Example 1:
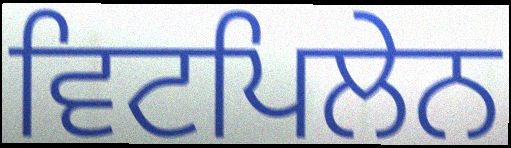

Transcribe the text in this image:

ਵਿਟਪਿਲੇਨ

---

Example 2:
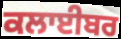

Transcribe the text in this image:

ਕਲਾਈਬਰ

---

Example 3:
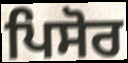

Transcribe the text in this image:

ਪਿਸੋਰ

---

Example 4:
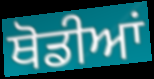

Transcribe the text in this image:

ਥੋਡੀਆਂ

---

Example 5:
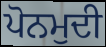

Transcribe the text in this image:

ਪੋਨਮੁਦੀ